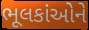
ભૂલકાંઓને